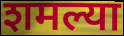
शमल्या